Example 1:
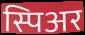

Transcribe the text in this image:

स्पिअर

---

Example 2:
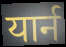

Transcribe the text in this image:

यार्न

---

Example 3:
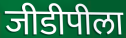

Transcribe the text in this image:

जीडीपीला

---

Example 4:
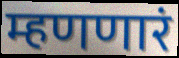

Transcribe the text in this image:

म्हणणारं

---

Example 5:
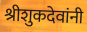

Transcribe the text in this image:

श्रीशुकदेवांनी